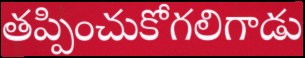
తప్పించుకోగలిగాడు